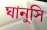
ঘানুসি